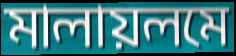
মালায়লমে